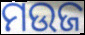
ମଉଜ